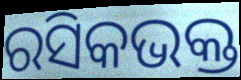
ରସିକଭକ୍ତ